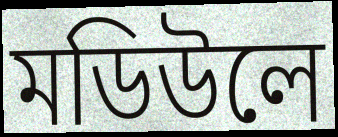
মডিউলে